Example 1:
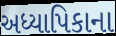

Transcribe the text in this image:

અધ્યાપિકાના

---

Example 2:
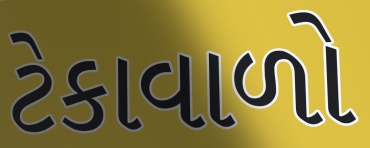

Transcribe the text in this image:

ટેકાવાળો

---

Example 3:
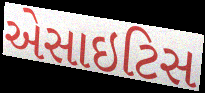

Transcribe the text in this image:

એસાઇટિસ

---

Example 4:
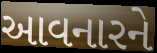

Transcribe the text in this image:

આવનારને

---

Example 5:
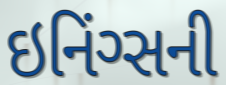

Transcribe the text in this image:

ઇનિંગ્સની